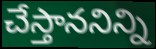
చేస్తాననిన్ని